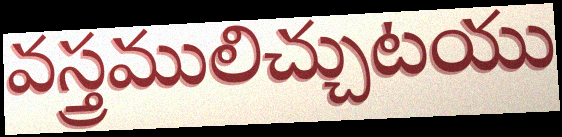
వస్త్రములిచ్చుటయు